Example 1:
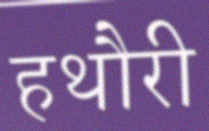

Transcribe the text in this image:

हथौरी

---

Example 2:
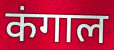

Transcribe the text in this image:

कंगाल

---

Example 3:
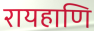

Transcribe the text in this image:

रायहाणि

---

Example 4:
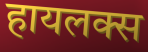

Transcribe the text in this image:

हायलक्स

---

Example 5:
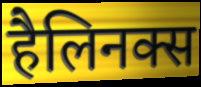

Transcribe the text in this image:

हैलिनक्स